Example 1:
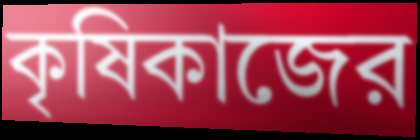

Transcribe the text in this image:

কৃষিকাজের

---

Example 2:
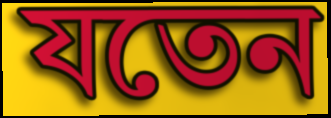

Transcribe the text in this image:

যতেন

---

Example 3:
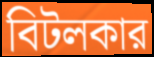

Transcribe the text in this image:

বিটলকার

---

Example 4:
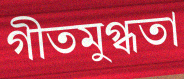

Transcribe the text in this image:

গীতমুগ্ধতা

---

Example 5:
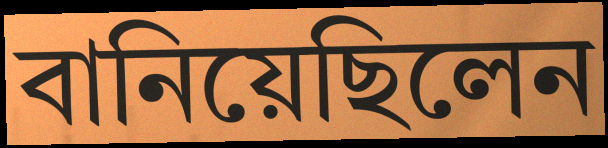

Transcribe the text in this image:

বানিয়েছিলেন